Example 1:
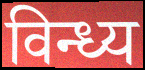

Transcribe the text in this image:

विन्ध्य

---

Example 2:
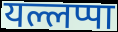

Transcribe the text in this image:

यल्लप्पा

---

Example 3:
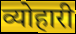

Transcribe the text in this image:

व्योहारी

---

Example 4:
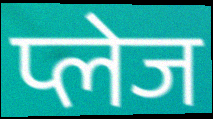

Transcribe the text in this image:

प्‍लेज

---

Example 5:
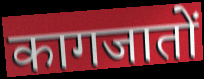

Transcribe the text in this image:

कागजातों